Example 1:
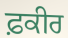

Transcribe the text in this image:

ਫ਼ਕੀਰ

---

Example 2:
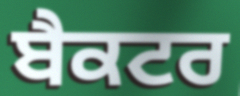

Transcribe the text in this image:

ਬੈਕਟਰ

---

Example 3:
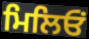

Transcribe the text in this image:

ਮਿਲਿਓਂ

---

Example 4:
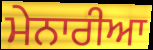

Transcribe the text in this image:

ਮੇਨਾਰੀਆ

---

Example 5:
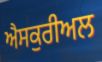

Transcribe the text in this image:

ਐਸਕੁਰੀਅਲ